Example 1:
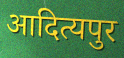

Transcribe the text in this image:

आदित्यपुर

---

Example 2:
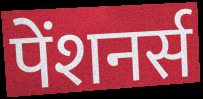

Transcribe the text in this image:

पेंशनर्स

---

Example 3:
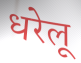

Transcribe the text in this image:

धरेलू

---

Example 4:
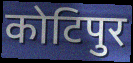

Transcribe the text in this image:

कोटिपुर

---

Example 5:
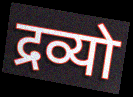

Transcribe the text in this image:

द्रव्यो